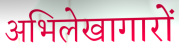
अभिलेखागारों